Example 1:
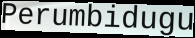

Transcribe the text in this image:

Perumbidugu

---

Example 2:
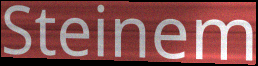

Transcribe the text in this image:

Steinem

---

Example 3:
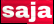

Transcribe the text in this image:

saja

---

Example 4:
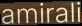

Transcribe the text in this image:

amirali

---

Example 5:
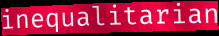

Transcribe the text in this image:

inequalitarian